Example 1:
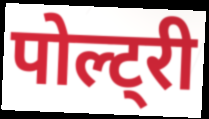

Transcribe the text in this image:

पोल्ट्री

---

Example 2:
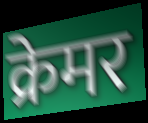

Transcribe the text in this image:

क्रेमर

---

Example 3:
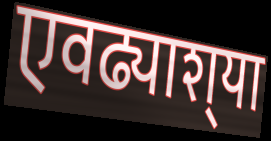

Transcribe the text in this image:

एवढ्याश्या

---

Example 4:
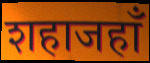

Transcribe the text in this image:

शहाजहाँ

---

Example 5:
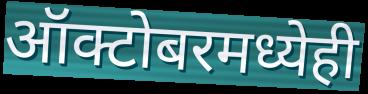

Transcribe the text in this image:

ऑक्टोबरमध्येही